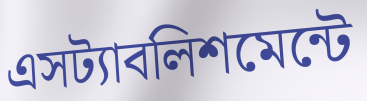
এসট্যাবলিশমেন্টে